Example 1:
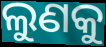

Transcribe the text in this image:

ଲୁଣକୁ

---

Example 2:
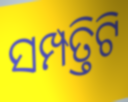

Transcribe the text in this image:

ସମ୍ପତ୍ତିଟି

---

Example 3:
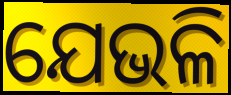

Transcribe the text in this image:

ଯେଭଳି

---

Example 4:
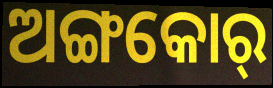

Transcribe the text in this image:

ଅଙ୍ଗକୋର୍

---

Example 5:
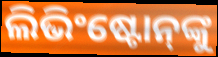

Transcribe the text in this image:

ଲିଭିଂଷ୍ଟୋନ୍‌ଙ୍କୁ